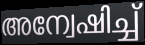
അന്വേഷിച്ച്